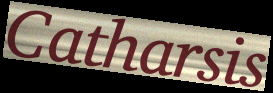
Catharsis